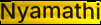
Nyamathi